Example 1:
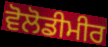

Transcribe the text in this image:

ਵੋਲੋਡੀਮੀਰ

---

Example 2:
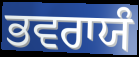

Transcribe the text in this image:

ਭਵਰਾਯੰ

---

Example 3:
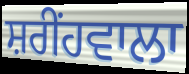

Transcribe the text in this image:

ਸ਼ਰੀਂਹਵਾਲਾ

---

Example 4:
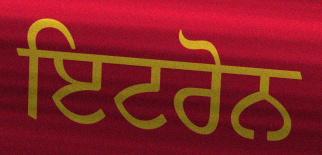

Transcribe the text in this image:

ਇਟਰੋਨ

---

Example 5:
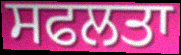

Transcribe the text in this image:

ਸਫਲਤਾ